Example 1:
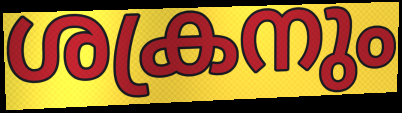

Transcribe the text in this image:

ശക്രനും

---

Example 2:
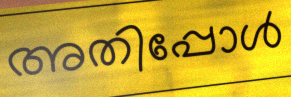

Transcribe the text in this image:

അതിപ്പോൾ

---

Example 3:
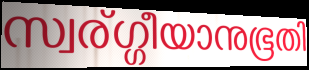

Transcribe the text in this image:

സ്വര്ഗ്ഗീയാനുഭൂതി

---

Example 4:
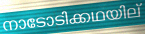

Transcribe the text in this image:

നാടോടിക്കഥയില്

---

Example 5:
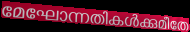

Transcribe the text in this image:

മേഘോന്നതികൾക്കുമീതേ